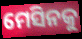
ମେସିନକୁ